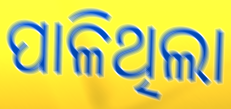
ପାଳିଥିଲା